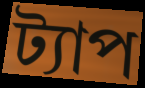
ট্যাপ